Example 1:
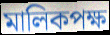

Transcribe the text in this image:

মালিকপক্ষ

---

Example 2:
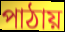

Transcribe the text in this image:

পাঠায়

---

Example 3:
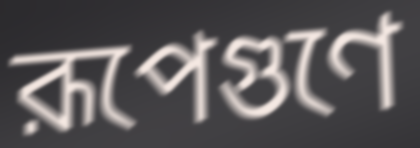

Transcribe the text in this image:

রূপেগুণে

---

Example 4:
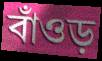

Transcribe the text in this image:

বাঁওড়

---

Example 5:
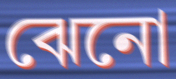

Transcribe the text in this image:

ঝেনো